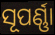
ସୂପର୍ଣ୍ଣା